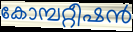
കോമ്പറ്റീഷൻ